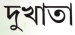
দুখাতা